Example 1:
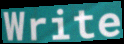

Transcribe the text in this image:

Write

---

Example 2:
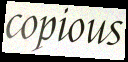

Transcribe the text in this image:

copious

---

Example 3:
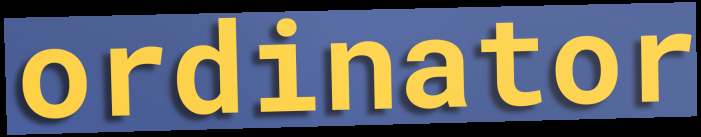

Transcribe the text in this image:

ordinator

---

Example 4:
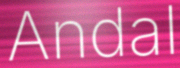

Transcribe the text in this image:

Andal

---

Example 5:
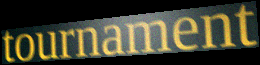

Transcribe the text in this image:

tournament